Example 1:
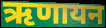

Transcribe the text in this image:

ऋणायन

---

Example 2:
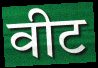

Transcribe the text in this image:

वीट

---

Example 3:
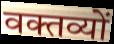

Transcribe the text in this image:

वक्‍तव्‍यों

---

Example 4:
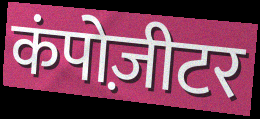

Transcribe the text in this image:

कंपोज़ीटर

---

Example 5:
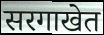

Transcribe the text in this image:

सरगाखेत